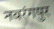
नवरंगपुर